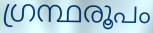
ഗ്രന്ഥരൂപം